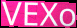
VEXo